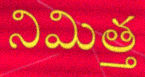
నిమిత్త